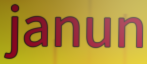
janun